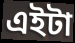
এইটা